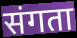
संगता